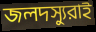
জলদস্যুরাই